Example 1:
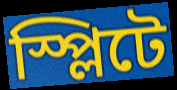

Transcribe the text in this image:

স্প্লিটে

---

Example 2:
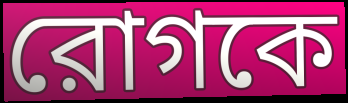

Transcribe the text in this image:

রোগকে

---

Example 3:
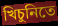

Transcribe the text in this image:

খিচুনিতে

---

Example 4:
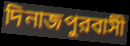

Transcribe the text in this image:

দিনাজপুরবাসী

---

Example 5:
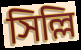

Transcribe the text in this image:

সিল্লি